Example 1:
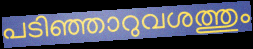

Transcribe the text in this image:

പടിഞ്ഞാറുവശത്തും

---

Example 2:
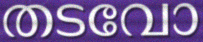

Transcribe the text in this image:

തടവോ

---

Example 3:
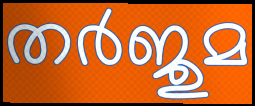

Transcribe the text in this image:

തർജുമ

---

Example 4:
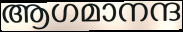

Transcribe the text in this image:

ആഗമാനന്ദ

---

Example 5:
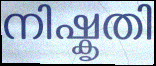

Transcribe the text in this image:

നിഷ്കൃതി